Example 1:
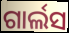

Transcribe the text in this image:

ଗାର୍ଲସ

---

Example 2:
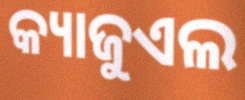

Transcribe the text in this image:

କ୍ୟାଜୁଏଲ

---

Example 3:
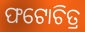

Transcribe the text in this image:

ଫଟୋଚିତ୍ର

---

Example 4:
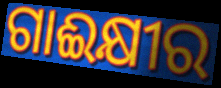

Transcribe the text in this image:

ଗାଈକ୍ଷୀର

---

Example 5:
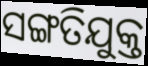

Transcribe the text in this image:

ସଙ୍ଗତିଯୁକ୍ତ